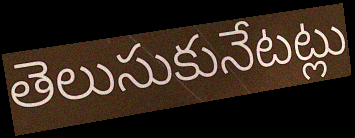
తెలుసుకునేటట్లు